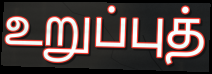
உறுப்புத்